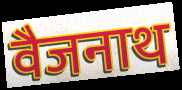
वैजनाथ